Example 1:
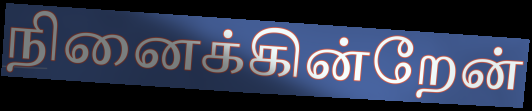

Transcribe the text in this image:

நினைக்கின்றேன்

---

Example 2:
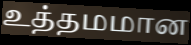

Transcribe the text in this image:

உத்தமமான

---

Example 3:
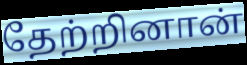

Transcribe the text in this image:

தேற்றினான்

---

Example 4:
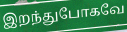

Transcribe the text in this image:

இறந்துபோகவே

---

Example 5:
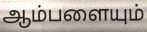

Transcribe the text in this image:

ஆம்பளையும்